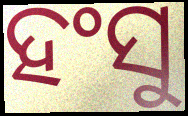
ହଂସୁ